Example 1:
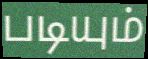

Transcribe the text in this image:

படியும்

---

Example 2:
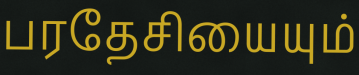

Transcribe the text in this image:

பரதேசியையும்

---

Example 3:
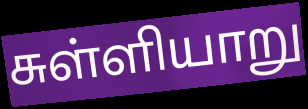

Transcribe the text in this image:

சுள்ளியாறு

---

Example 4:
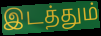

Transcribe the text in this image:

இடத்தும்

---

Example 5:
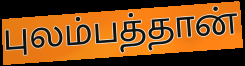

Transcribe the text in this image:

புலம்பத்தான்